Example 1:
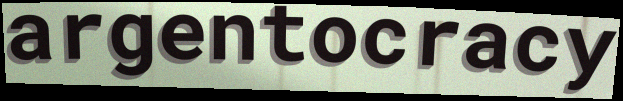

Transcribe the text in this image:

argentocracy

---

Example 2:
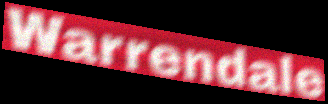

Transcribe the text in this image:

Warrendale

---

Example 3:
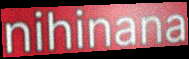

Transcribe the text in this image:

nihinana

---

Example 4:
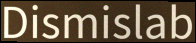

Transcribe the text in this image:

Dismislab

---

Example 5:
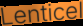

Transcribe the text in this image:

Lenticel